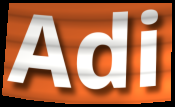
Adi